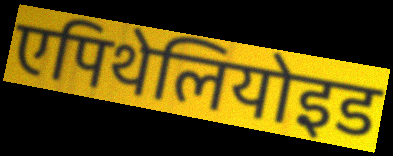
एपिथेलियोइड